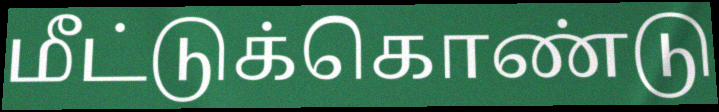
மீட்டுக்கொண்டு